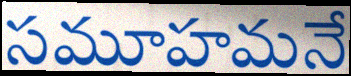
సమూహమనే